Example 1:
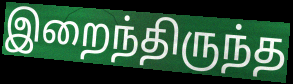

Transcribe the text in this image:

இறைந்திருந்த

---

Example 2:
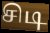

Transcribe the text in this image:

சிடி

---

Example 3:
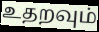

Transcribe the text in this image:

உதறவும்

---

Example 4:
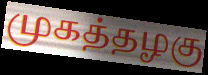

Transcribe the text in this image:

முகத்தழகு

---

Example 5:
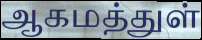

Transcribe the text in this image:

ஆகமத்துள்